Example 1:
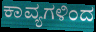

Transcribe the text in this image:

ಕಾವ್ಯಗಳಿಂದ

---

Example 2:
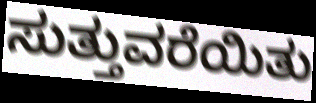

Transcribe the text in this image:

ಸುತ್ತುವರೆಯಿತು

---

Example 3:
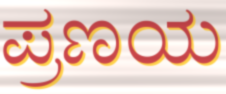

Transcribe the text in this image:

ಪ್ರಣಯ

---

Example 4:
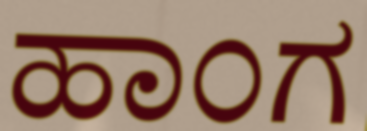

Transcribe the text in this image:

ಹಾಂಗ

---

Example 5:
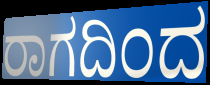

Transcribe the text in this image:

ರಾಗದಿಂದ